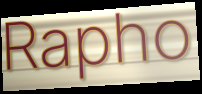
Rapho